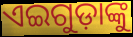
ଏଇଗୁଡ଼ାଙ୍କୁ